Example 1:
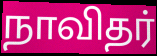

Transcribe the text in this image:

நாவிதர்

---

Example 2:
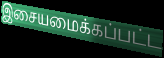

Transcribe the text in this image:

இசையமைக்கப்பட்ட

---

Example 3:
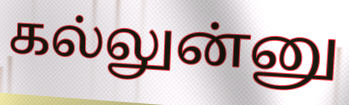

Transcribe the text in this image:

கல்லுன்னு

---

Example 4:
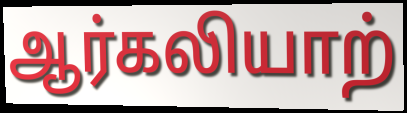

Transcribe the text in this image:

ஆர்கலியாற்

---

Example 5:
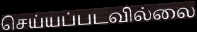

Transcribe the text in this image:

செய்யப்படவில்லை